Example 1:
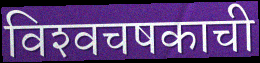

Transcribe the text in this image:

विश्वचषकाची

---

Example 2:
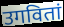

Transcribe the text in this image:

उगवितां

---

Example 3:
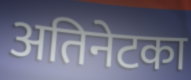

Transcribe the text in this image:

अतिनेटका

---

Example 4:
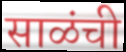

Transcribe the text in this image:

साळंची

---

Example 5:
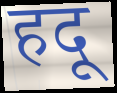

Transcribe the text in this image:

हदू